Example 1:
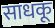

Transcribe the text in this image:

साधकू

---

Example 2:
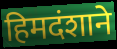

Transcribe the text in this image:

हिमदंशाने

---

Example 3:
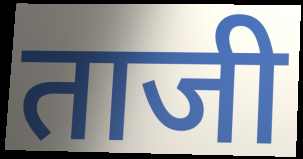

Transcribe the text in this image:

ताजी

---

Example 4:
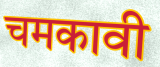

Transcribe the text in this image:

चमकावी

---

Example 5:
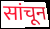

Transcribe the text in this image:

सांचून